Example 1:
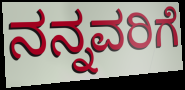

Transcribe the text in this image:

ನನ್ನವರಿಗೆ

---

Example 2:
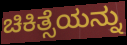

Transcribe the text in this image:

ಚಿಕಿತ್ಸೆಯನ್ನು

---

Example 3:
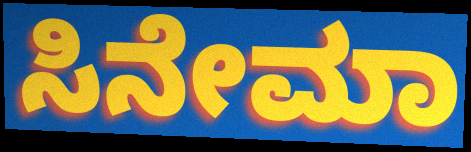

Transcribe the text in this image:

ಸಿನೇಮಾ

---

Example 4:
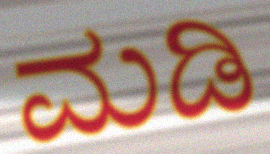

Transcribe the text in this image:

ಮಡಿ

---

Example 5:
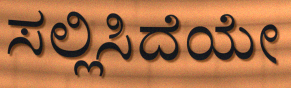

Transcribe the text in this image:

ಸಲ್ಲಿಸಿದೆಯೇ